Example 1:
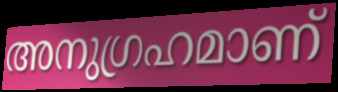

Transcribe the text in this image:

അനുഗ്രഹമാണ്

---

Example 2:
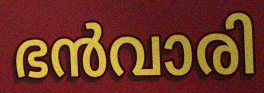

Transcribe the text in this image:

ഭൻവാരി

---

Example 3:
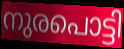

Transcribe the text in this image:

നുരപൊട്ടി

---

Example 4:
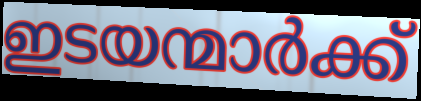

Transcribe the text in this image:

ഇടയന്മാർക്ക്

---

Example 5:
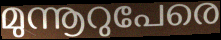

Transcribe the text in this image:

മുന്നൂറുപേരെ